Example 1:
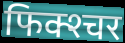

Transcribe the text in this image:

फिक्श्चर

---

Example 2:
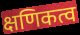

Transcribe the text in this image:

क्षणिकत्व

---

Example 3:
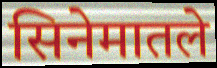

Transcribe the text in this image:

सिनेमातले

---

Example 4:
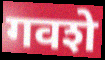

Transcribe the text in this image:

गवशे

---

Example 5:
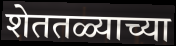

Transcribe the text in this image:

शेततळ्याच्या